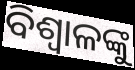
ବିଶ୍ୱାଳଙ୍କୁ